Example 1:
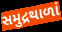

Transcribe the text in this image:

સમુદ્રથાળાં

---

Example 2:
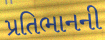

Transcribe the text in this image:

પ્રતિભાનની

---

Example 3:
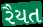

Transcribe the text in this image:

રૈયત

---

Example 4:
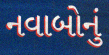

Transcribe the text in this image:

નવાબોનું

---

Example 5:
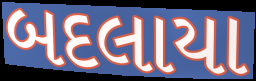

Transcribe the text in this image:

બદલાયા